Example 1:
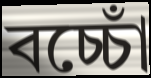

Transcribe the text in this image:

বচ্চোঁ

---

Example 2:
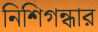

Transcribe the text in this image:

নিশিগন্ধার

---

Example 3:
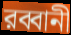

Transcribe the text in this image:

রব্বানী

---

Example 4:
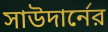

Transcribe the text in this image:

সাউদার্নের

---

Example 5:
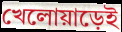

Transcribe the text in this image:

খেলোয়াড়েই